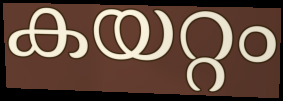
കയറ്റം